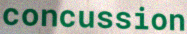
concussion